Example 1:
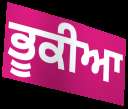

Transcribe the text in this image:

ਭੂਕੀਆ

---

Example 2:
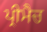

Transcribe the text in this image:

ਪ੍ਰੀਮੈਚ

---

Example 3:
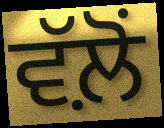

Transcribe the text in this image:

ਵੱਲ਼ੋਂ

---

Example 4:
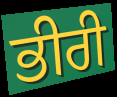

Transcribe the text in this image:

ਭੀਰੀ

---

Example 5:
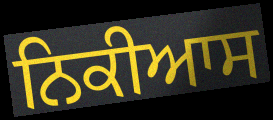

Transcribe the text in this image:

ਨਿਕੀਆਸ